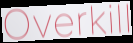
Overkill